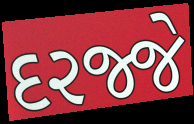
દરજ્જે